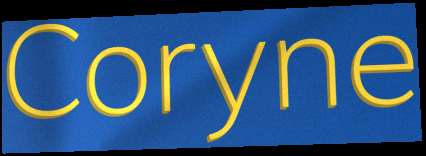
Coryne